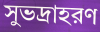
সুভদ্রাহরণ